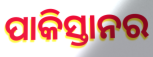
ପାକିସ୍ତାନର